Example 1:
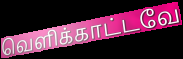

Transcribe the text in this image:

வெளிக்காட்டவே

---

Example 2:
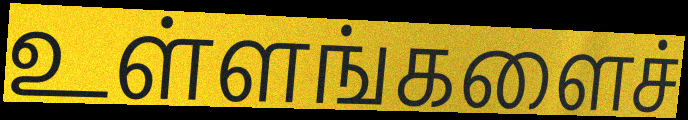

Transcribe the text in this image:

உள்ளங்களைச்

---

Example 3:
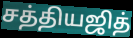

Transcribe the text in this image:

சத்தியஜித்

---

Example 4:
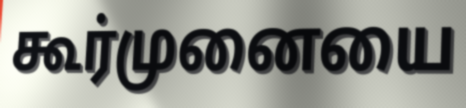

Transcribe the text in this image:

கூர்முனையை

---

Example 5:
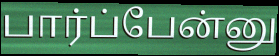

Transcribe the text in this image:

பார்ப்பேன்னு